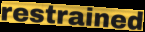
restrained